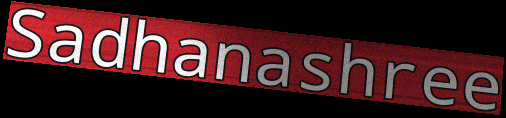
Sadhanashree